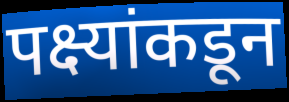
पक्ष्यांकडून